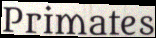
Primates